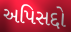
અપિસદ્દો